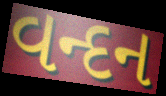
વન્દન